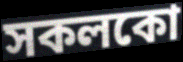
সকলকো